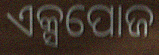
ଏକ୍ସପୋଜ